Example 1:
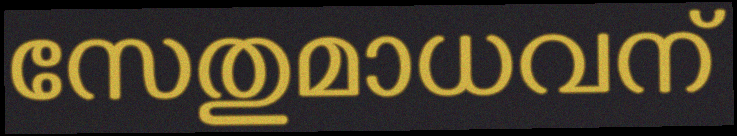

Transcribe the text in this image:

സേതുമാധവന്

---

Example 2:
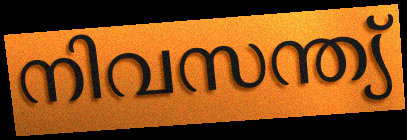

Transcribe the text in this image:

നിവസന്ത്യ്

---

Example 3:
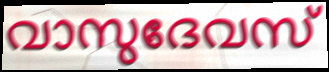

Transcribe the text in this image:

വാസുദേവസ്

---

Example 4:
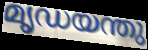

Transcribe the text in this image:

മൃഡയന്തു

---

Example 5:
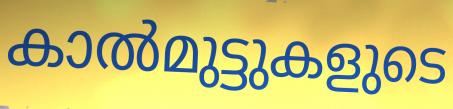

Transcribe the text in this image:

കാൽമുട്ടുകളുടെ